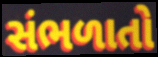
સંભળાતો